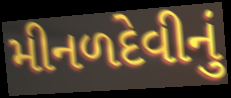
મીનળદેવીનું